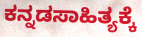
ಕನ್ನಡಸಾಹಿತ್ಯಕ್ಕೆ